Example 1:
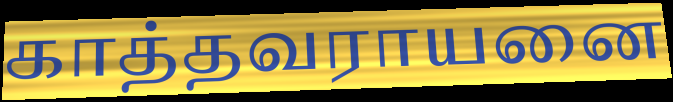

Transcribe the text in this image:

காத்தவராயனை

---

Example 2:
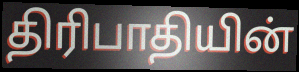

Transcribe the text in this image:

திரிபாதியின்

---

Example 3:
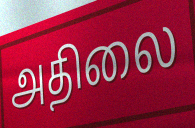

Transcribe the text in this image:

அதிலை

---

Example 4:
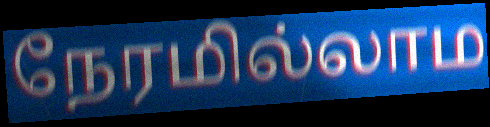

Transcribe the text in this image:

நேரமில்லாம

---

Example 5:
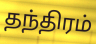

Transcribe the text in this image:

தந்திரம்